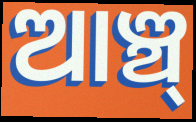
ଆଞ୍ଚ୍